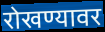
रोखण्यावर